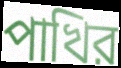
পাখির